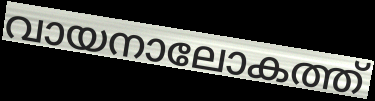
വായനാലോകത്ത്